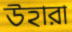
উহারা